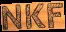
NKF